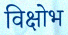
विक्षोभ